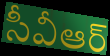
సీవీఆర్